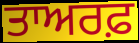
ਤਾਅਰਫ਼